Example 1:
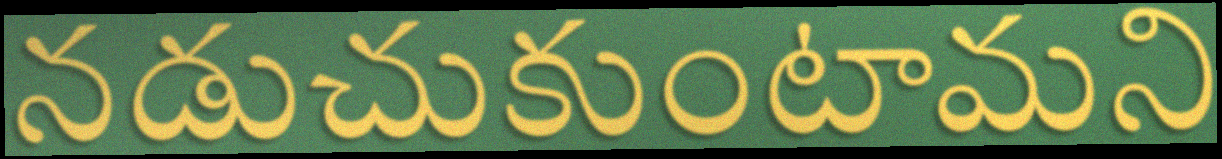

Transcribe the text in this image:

నడుచుకుంటామని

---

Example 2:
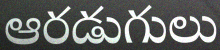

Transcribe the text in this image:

ఆరడుగులు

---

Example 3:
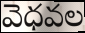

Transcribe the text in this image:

వెధవల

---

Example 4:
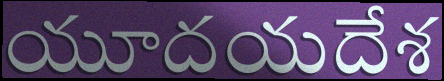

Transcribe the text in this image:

యూదయదేశ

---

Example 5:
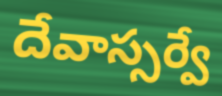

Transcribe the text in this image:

దేవాస్సర్వే